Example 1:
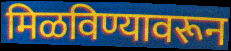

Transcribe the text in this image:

मिळविण्यावरून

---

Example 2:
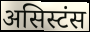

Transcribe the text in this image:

असिस्टंस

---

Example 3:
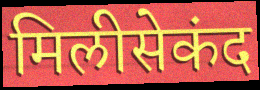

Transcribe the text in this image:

मिलीसेकंद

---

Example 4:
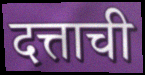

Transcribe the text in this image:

दत्ताची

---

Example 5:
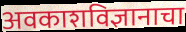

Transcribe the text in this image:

अवकाशविज्ञानाचा